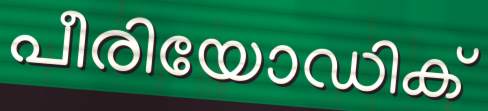
പീരിയോഡിക്